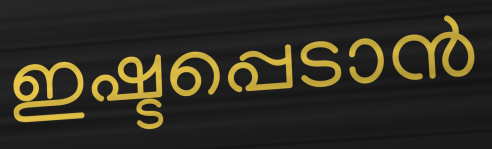
ഇഷ്ടപ്പെടാൻ